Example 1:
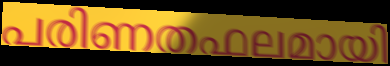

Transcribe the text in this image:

പരിണതഫലമായി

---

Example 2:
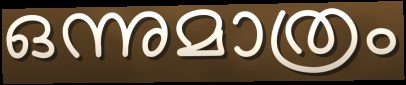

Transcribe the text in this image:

ഒന്നുമാത്രം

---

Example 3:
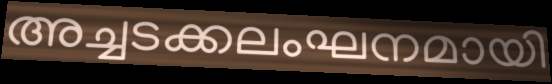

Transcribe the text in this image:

അച്ചടക്കലംഘനമായി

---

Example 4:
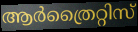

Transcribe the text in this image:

ആർത്രൈറ്റിസ്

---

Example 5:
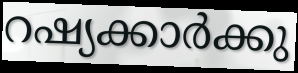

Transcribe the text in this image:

റഷ്യക്കാർക്കു